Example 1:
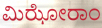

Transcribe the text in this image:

ಮಿಝೋರಾಂ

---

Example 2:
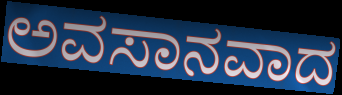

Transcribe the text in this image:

ಅವಸಾನವಾದ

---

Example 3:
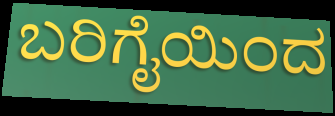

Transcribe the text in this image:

ಬರಿಗೈಯಿಂದ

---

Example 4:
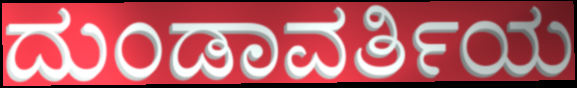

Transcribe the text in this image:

ದುಂಡಾವರ್ತಿಯ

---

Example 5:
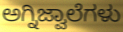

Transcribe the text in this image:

ಅಗ್ನಿಜ್ವಾಲೆಗಳು